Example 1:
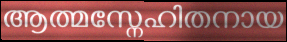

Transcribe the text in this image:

ആത്മസ്നേഹിതനായ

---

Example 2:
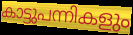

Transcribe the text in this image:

കാട്ടുപന്നികളും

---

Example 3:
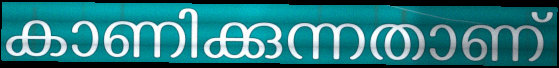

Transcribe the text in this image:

കാണിക്കുന്നതാണ്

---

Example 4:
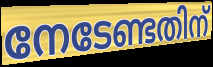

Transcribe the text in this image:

നേടേണ്ടതിന്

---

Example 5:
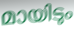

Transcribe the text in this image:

മായിടും